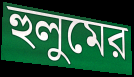
হুলুমের